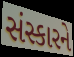
સંસ્કારને